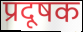
प्रदूषक